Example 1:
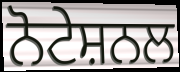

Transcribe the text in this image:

ਨੋਟੇਸ਼ਨਲ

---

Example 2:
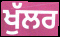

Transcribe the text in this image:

ਖੁੱਲਰ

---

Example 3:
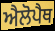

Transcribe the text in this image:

ਐਲੋਪੈਥ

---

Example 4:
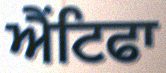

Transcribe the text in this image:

ਐਂਟਿਫਾ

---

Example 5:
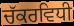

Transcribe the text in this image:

ਚੱਕਰਵਿਧੀ